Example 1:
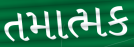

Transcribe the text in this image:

તમાત્મક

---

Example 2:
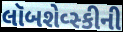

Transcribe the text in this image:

લૉબશેવ્સ્કીની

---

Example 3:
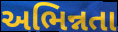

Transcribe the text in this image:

અભિન્નતા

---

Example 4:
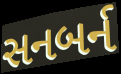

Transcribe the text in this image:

સનબર્ન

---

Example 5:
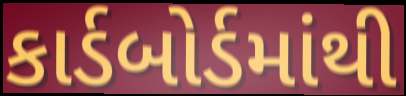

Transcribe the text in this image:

કાર્ડબોર્ડમાંથી